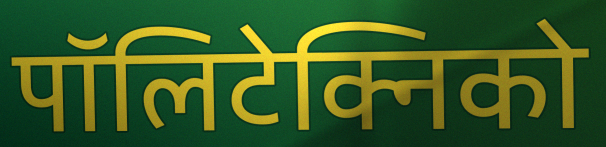
पॉलिटेक्निको